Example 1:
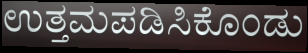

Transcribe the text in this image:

ಉತ್ತಮಪಡಿಸಿಕೊಂಡು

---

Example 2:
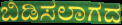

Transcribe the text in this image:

ಬಿಡಿಸಲಾಗದ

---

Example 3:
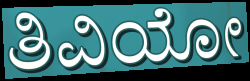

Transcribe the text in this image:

ತಿವಿಯೋ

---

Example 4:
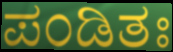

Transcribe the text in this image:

ಪಂಡಿತಃ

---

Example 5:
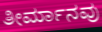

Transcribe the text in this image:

ತೀರ್ಮಾನವು